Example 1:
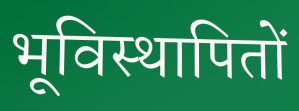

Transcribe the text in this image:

भूविस्थापितों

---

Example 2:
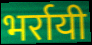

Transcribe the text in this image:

भर्रायी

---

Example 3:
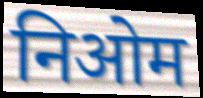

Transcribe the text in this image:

निओम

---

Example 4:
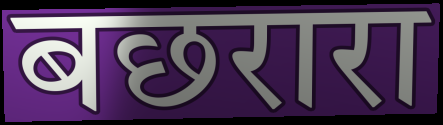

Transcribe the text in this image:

बछरारा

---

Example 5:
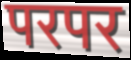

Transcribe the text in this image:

परपर